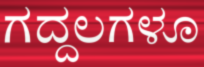
ಗದ್ದಲಗಳೂ